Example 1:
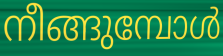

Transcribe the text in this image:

നീങ്ങുമ്പോൾ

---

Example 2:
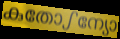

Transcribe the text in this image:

കുതോഽന്യോ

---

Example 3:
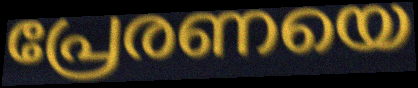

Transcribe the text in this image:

പ്രേരണയെ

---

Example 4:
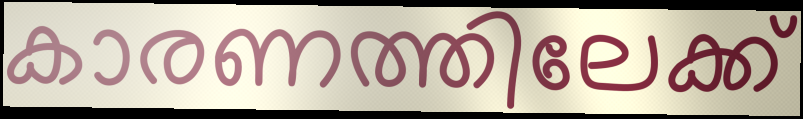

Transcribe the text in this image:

കാരണത്തിലേക്ക്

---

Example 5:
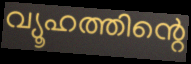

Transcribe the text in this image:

വ്യൂഹത്തിന്റെ